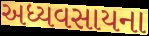
અધ્યવસાયના